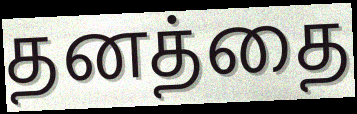
தனத்தை